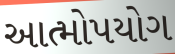
આત્મોપયોગ